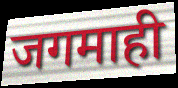
जगमाही